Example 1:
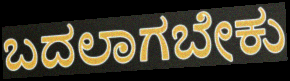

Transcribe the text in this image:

ಬದಲಾಗಬೇಕು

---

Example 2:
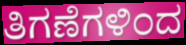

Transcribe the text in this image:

ತಿಗಣೆಗಳಿಂದ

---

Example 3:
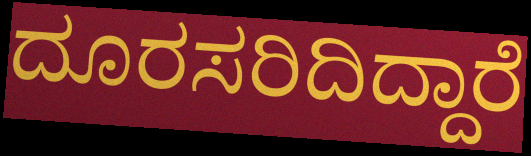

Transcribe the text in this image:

ದೂರಸರಿದಿದ್ದಾರೆ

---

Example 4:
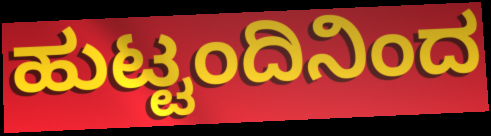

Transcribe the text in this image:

ಹುಟ್ಟಂದಿನಿಂದ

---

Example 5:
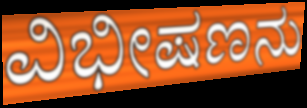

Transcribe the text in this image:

ವಿಭೀಷಣನು